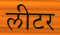
लीटर